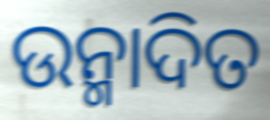
ଉନ୍ମାଦିତ